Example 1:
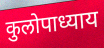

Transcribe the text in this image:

कुलोपाध्याय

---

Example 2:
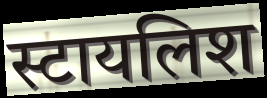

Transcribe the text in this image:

स्टायलिश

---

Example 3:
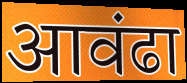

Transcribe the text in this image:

आवंढा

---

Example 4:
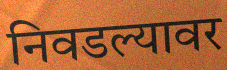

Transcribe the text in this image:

निवडल्यावर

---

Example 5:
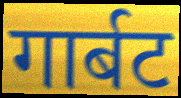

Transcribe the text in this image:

गार्बट